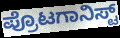
ಪ್ರೊಟಗಾನಿಸ್ಟ್